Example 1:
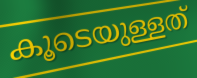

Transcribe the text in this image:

കൂടെയുള്ളത്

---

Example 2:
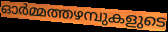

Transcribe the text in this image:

ഓർമ്മത്തഴമ്പുകളുടെ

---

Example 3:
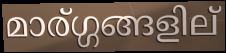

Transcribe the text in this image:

മാര്ഗ്ഗങ്ങളില്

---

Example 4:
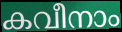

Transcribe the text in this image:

കവീനാം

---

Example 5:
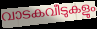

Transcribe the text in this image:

വാടകവീടുകളും